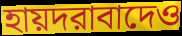
হায়দরাবাদেও